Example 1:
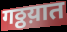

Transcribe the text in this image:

गठ्ठय़ात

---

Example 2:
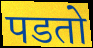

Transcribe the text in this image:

पडतो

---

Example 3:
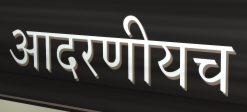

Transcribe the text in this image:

आदरणीयच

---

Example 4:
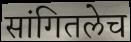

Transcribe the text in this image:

सांगितलेच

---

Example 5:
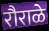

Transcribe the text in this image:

रौराळे